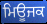
ਮਿਊਜਕ